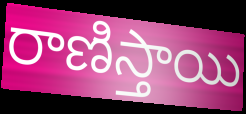
రాణిస్తాయి